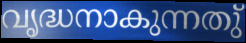
വൃദ്ധനാകുന്നതു്